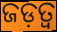
ଜଡ଼ତ୍ଵ